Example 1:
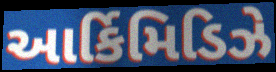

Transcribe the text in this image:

આર્કિમિડિઝે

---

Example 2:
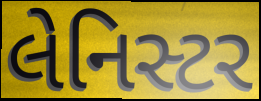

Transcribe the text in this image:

લેનિસ્ટર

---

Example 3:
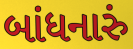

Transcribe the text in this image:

બાંધનારું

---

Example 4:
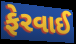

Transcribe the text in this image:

ફેરવાઈ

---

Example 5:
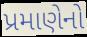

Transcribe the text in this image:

પ્રમાણેનો